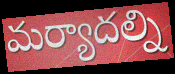
మర్యాదల్ని